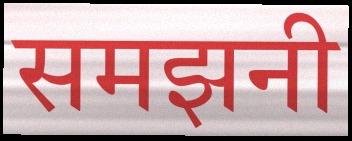
समझनी